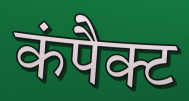
कंपैक्ट